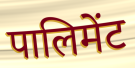
पालिमेंट